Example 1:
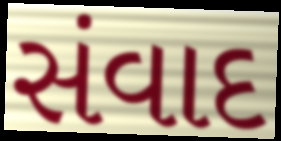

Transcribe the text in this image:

સંવાદ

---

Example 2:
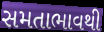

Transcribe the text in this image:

સમતાભાવથી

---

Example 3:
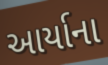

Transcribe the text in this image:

આર્યાના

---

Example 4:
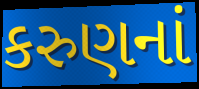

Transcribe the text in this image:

કરુણનાં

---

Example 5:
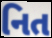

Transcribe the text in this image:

નિત